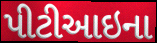
પીટીઆઇના